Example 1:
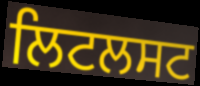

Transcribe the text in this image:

ਲਿਟਲਸਟ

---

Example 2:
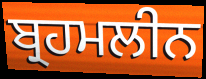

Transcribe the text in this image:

ਬ੍ਰਹਮਲੀਨ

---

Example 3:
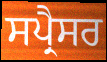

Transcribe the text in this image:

ਸਪ੍ਰੈਸਰ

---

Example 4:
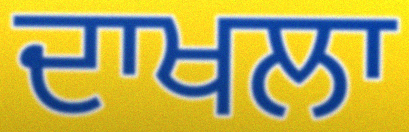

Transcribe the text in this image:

ਦਾਖਲਾ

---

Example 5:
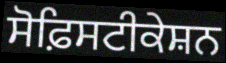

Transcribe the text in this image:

ਸੋਫ਼ਿਸਟੀਕੇਸ਼ਨ